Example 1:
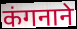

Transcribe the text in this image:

कंगनाने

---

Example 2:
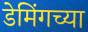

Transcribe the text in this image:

डेमिंगच्या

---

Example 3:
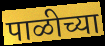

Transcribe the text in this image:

पाळीच्या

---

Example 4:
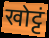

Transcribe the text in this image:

खोट्टं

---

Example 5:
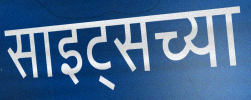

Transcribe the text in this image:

साइट्सच्या